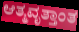
ಆತ್ಮವೃತ್ತಾಂತ